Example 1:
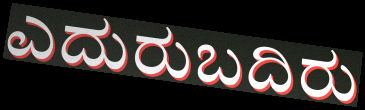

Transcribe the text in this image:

ಎದುರುಬದಿರು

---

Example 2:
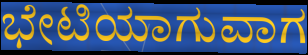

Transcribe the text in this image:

ಭೇಟಿಯಾಗುವಾಗ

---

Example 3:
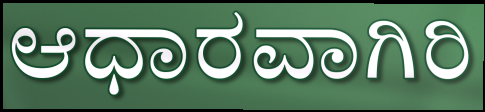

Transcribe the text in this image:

ಆಧಾರವಾಗಿರಿ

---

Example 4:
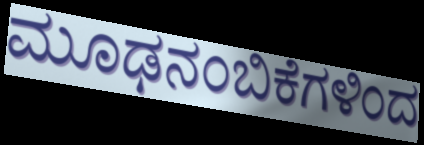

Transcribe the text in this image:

ಮೂಢನಂಬಿಕೆಗಳಿಂದ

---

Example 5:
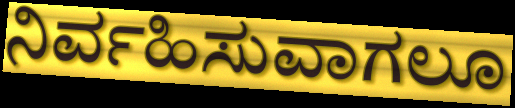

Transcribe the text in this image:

ನಿರ್ವಹಿಸುವಾಗಲೂ